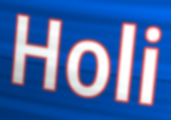
Holi